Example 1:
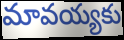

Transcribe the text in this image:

మావయ్యకు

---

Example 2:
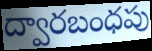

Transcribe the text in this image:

ద్వారబంధపు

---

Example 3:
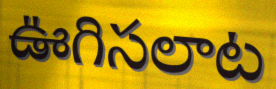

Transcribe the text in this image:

ఊగిసలాట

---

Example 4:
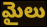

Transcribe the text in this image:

మైలు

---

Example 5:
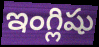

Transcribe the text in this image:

ఇంగ్లిషు